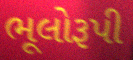
ભૂલોરૂપી